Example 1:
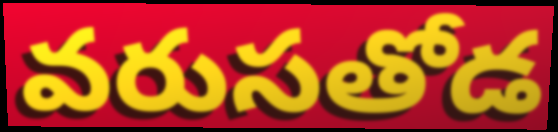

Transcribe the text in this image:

వరుసతోడ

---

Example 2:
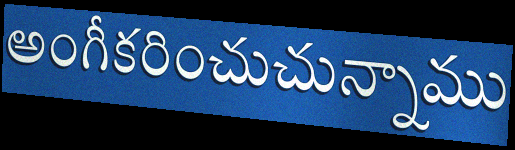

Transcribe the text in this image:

అంగీకరించుచున్నాము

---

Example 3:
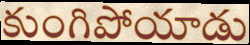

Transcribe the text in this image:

కుంగిపోయాడు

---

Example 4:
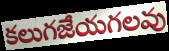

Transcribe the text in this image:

కలుగజేయగలవు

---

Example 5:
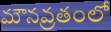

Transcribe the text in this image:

మౌనవ్రతంలో